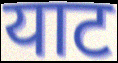
याट